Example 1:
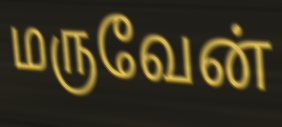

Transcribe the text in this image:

மருவேன்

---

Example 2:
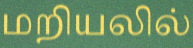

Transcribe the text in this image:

மறியலில்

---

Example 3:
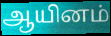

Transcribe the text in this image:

ஆயினம்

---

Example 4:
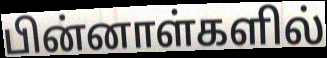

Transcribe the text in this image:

பின்னாள்களில்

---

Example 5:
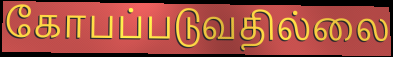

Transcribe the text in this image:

கோபப்படுவதில்லை